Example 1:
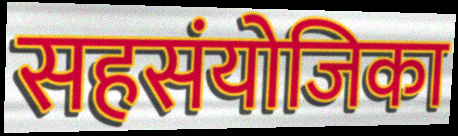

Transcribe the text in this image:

सहसंयोजिका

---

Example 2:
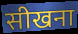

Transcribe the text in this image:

सीखना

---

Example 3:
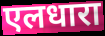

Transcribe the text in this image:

एलधारा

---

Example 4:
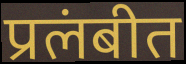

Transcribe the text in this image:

प्रलंबीत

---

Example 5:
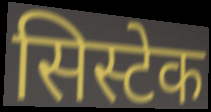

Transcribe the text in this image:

सिस्टेक